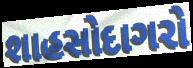
શાહસોદાગરો